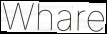
Whare